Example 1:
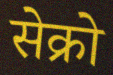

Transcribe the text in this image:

सेक्रो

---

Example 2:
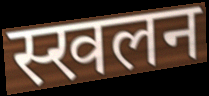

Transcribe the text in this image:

स्‍खलन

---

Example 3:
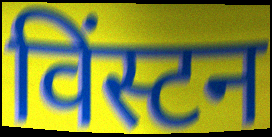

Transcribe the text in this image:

विंस्टन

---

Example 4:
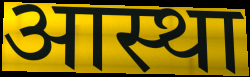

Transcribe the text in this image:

आस्‍था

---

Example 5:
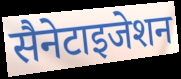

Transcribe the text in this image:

सैनेटाइजेशन